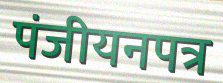
पंजीयनपत्र